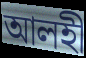
আলহী